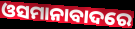
ଓସମାନାବାଦରେ